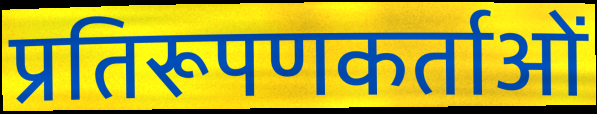
प्रतिरूपणकर्ताओं